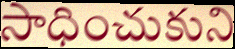
సాధించుకుని